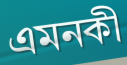
এমনকী